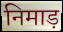
निमाड़